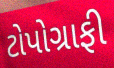
ટોપોગ્રાફી